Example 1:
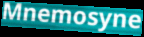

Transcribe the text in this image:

Mnemosyne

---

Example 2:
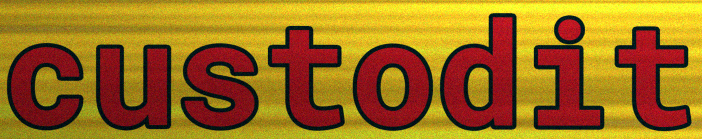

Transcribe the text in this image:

custodit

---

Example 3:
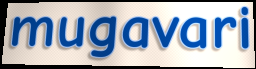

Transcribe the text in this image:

mugavari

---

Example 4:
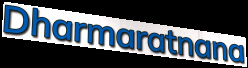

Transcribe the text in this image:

Dharmaratnana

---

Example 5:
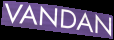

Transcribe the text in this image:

VANDAN